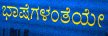
ಭಾಷೆಗಳಂತೆಯೇ